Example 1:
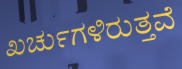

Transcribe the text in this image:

ಖರ್ಚುಗಳಿರುತ್ತವೆ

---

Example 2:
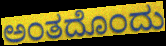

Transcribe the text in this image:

ಅಂತದೊಂದು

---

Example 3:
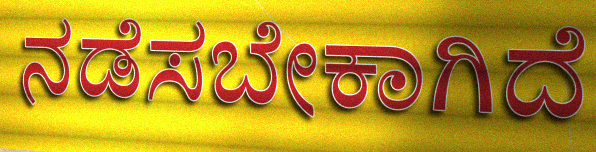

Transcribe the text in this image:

ನಡೆಸಬೇಕಾಗಿದೆ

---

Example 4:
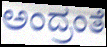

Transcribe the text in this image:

ಅಂದ್ರಂತೆ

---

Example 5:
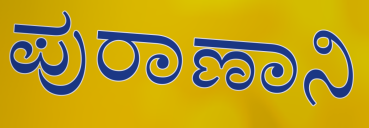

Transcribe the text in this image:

ಪುರಾಣಾನಿ